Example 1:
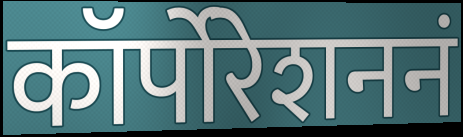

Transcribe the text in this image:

कॉर्पोरेशननं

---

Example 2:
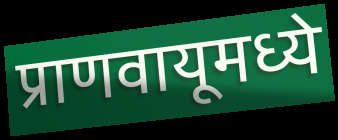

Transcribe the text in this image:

प्राणवायूमध्ये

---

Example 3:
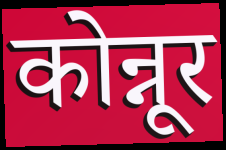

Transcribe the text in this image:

कोन्नूर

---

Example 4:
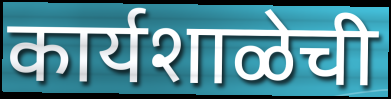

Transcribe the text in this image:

कार्यशाळेची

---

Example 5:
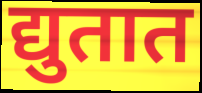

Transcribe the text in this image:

द्युतात